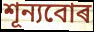
শূন্যবোৰ